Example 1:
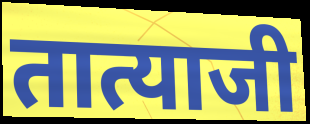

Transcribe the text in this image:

तात्याजी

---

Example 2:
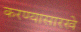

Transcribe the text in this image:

करण्यासारखे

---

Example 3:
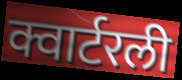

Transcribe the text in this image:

क्वार्टरली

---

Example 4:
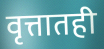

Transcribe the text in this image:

वृत्तातही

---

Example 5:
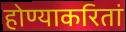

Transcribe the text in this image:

होण्याकरितां